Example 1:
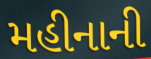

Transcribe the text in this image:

મહીનાની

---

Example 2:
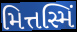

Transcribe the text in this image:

મિત્તસ્મિં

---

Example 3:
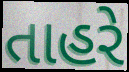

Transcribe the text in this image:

તાહરે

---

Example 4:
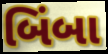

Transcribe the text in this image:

બિંબા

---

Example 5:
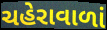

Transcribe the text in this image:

ચહેરાવાળાં